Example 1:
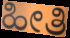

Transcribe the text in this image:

ಹೀತಿ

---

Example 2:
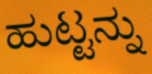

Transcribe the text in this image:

ಹುಟ್ಟನ್ನು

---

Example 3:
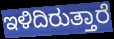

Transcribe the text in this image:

ಇಳಿದಿರುತ್ತಾರೆ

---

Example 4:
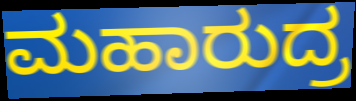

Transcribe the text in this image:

ಮಹಾರುದ್ರ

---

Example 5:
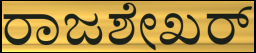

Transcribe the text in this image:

ರಾಜಶೇಖರ್